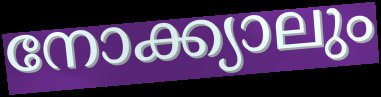
നോക്ക്യാലും